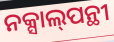
ନକ୍ସାଲ୍‌ପନ୍ଥୀ